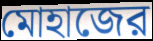
মোহাজের